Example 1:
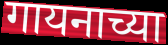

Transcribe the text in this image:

गायनाच्या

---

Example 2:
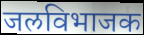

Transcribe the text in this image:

जलविभाजक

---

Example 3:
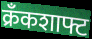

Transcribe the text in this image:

क्रँकशाफ्ट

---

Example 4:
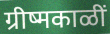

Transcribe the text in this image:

ग्रीष्मकाळीं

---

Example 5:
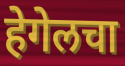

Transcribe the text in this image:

हेगेलचा